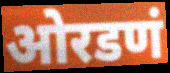
ओरडणं